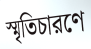
স্মৃতিচারণে